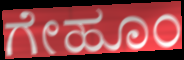
ಗೇಹೂಂ